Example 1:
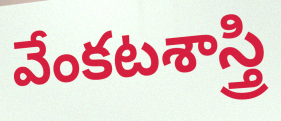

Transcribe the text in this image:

వేంకటశాస్త్రి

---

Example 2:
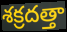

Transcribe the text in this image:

శక్రదత్తా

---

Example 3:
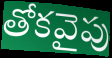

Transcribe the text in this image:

తోకవైపు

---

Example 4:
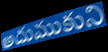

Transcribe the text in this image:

అదుముకుని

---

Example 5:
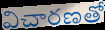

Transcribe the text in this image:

విచారణతో